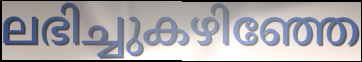
ലഭിച്ചുകഴിഞ്ഞേ